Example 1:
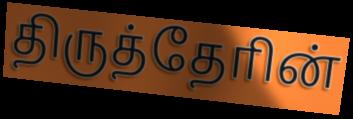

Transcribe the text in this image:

திருத்தேரின்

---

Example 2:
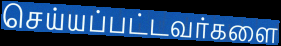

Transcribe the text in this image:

செய்யப்பட்டவர்களை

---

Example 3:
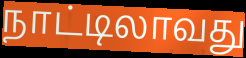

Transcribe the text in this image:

நாட்டிலாவது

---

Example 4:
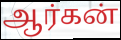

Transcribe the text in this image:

ஆர்கன்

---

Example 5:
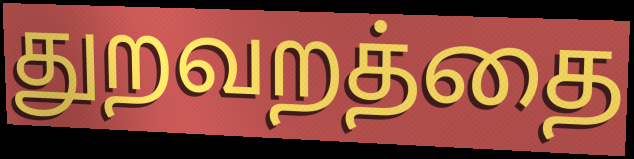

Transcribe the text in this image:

துறவறத்தை